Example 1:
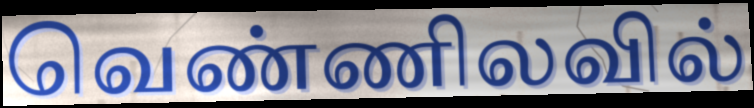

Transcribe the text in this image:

வெண்ணிலவில்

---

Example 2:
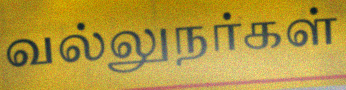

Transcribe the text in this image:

வல்லுநர்கள்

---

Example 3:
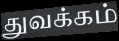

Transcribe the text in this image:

துவக்கம்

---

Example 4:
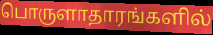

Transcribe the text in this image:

பொருளாதாரங்களில்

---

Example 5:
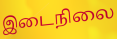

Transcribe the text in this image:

இடைநிலை